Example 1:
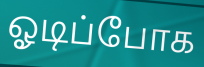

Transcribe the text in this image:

ஓடிப்போக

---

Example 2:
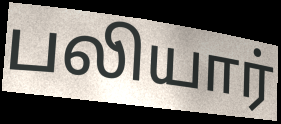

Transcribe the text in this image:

பலியார்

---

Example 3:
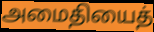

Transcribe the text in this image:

அமைதியைத்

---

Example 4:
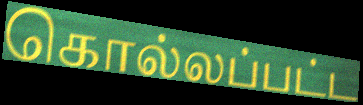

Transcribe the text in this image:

கொல்லப்பட்ட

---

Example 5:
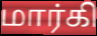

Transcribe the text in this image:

மார்கி